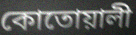
কোতোয়ালী